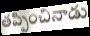
తప్పించినాడు